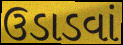
ઉડાડવાં